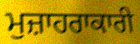
ਮੁਜ਼ਾਹਰਾਕਾਰੀ